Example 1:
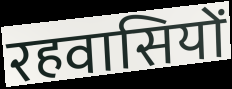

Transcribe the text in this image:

रहवासियों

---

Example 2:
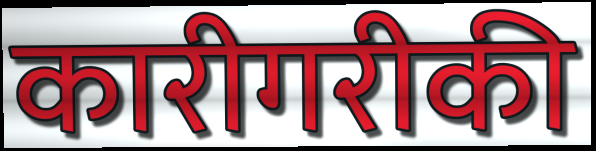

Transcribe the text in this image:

कारीगरीकी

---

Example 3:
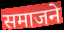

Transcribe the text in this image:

समाजने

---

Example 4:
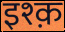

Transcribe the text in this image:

इश्क़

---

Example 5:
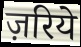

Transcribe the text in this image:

ज़रिये